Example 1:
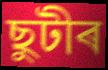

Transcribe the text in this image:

ছুটীৰ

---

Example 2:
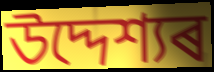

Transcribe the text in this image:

উদ্দেশ্যৰ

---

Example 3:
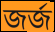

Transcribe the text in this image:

জৰ্জ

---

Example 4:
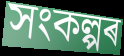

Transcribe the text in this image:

সংকল্পৰ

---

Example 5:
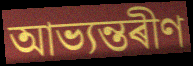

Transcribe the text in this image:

আভ্যন্তৰীণ